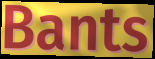
Bants